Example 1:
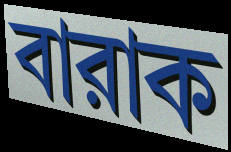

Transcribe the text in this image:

বারাক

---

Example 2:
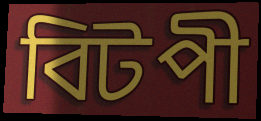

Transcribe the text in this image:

বিটপী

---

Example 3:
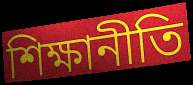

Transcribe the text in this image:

শিক্ষানীতি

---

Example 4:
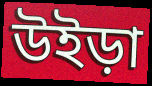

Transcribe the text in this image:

উইড়া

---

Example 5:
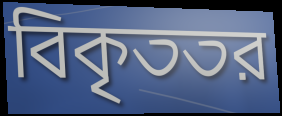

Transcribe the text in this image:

বিকৃততর